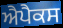
ਐਪੈਕਸ